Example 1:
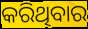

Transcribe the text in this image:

କରିଥିବାର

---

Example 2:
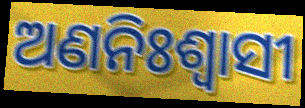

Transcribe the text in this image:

ଅଣନିଃଶ୍ଵାସୀ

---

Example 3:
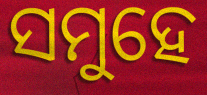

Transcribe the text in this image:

ସମୁହେ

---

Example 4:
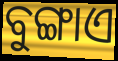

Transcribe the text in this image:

ବୁଙ୍ଗାଏ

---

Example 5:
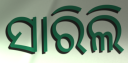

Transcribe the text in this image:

ସାରିଲି